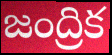
జంద్రిక